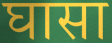
घासा